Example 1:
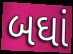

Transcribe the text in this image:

બઘાં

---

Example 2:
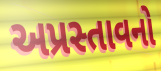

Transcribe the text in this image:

અપ્રસ્તાવનો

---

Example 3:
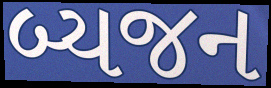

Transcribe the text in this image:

બ્યજન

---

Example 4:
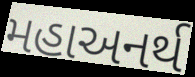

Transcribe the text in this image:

મહાઅનર્થ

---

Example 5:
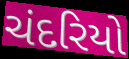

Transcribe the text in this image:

ચંદરિયો